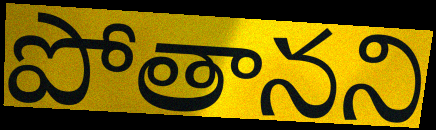
పోతానని